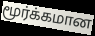
மூர்க்கமான